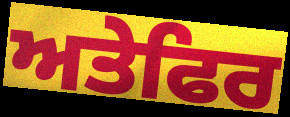
ਅਤੇਫਿਰ